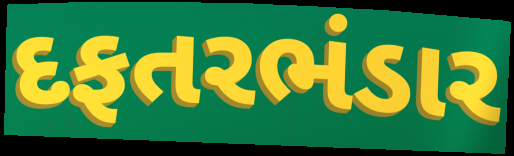
દફતરભંડાર